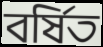
বর্ষিত